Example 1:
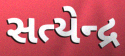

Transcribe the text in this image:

સત્યેન્દ્ર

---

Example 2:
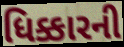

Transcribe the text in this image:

ધિક્કારની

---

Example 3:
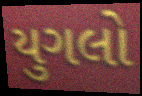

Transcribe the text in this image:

યુગલો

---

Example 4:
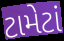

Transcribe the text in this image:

ટામેટાં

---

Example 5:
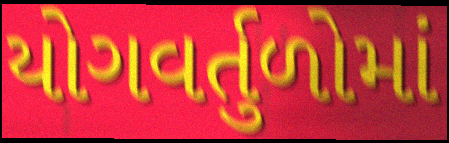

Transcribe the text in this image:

યોગવર્તુળોમાં